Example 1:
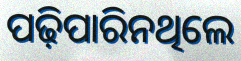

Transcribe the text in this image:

ପଢ଼ିପାରିନଥିଲେ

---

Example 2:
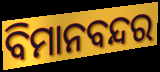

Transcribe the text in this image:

ବିମାନବନ୍ଦର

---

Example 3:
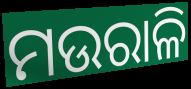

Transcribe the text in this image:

ମଉରାଳି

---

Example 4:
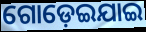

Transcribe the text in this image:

ଗୋଡ଼େଇଯାଇ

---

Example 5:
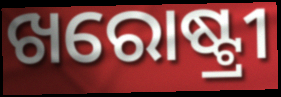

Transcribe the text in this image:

ଖରୋଷ୍ଟ୍ରୀ